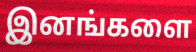
இனங்களை